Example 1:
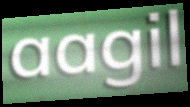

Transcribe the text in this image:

aagil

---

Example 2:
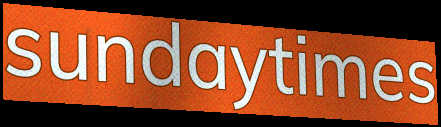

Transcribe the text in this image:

sundaytimes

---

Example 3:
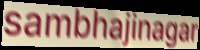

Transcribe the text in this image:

sambhajinagar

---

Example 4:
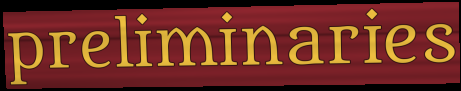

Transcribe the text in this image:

preliminaries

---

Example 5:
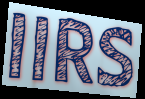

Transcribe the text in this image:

IIRS